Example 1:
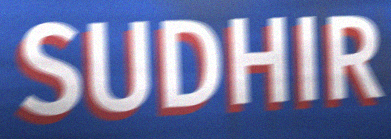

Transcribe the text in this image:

SUDHIR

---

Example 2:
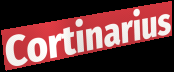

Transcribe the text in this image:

Cortinarius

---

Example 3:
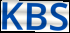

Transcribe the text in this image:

KBS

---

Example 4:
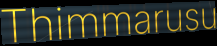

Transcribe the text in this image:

Thimmarusu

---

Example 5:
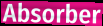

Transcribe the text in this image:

Absorber